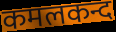
कमलकन्द